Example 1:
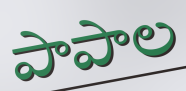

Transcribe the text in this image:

పాపాల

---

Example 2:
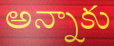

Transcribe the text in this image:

అన్నాకు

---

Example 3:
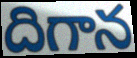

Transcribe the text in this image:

దిగాన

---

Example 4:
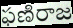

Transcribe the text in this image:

ఫణిరాజ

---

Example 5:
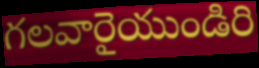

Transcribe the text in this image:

గలవారైయుండిరి